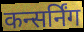
कन्सर्निंग